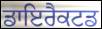
ਡਾਇਰੈਕਟਡ